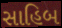
સાહિબ